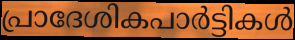
പ്രാദേശികപാർട്ടികൾ